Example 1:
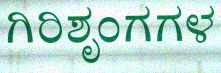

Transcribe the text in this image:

ಗಿರಿಶೃಂಗಗಳ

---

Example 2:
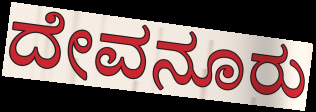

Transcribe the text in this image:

ದೇವನೂರು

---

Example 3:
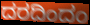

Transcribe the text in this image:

ದರದಿಂದಂ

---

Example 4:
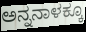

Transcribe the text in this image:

ಅನ್ನನಾಳಕ್ಕೂ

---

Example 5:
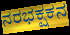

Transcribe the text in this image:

ನರಭಕ್ಷಕನ